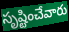
సృష్టించేవారు